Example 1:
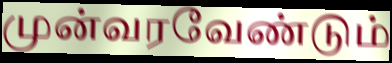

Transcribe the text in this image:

முன்வரவேண்டும்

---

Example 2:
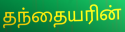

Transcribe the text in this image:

தந்தையரின்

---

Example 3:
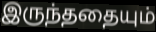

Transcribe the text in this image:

இருந்ததையும்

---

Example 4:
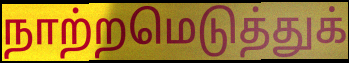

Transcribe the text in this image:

நாற்றமெடுத்துக்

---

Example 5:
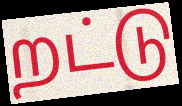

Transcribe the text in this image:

றட்டு